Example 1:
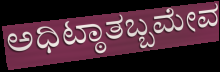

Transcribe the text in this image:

ಅಧಿಟ್ಠಾತಬ್ಬಮೇವ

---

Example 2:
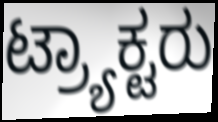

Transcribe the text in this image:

ಟ್ರ್ಯಾಕ್ಟರು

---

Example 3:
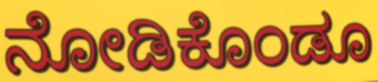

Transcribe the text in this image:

ನೋಡಿಕೊಂಡೂ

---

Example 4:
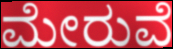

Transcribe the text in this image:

ಮೇರುವೆ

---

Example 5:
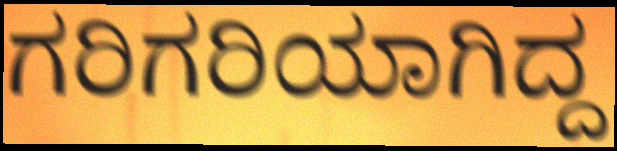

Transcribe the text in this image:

ಗರಿಗರಿಯಾಗಿದ್ದ